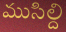
ముసిల్ది